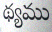
థ్యము